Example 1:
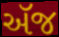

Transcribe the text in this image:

ઍજ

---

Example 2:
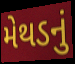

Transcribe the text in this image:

મેથડનું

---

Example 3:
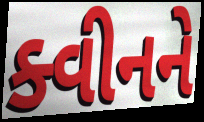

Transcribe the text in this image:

ક્વીનને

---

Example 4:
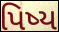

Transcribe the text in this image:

પિષ્ય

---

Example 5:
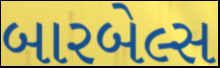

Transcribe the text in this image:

બારબેલ્સ